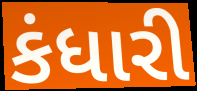
કંધારી